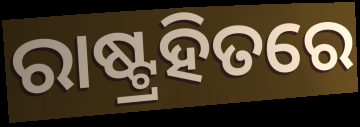
ରାଷ୍ଟ୍ରହିତରେ